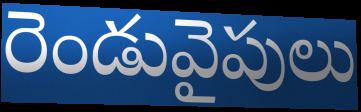
రెండువైపులు